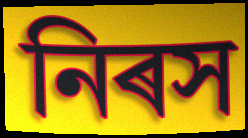
নিৰস